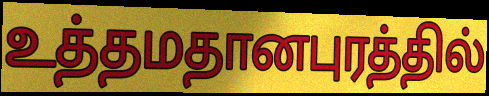
உத்தமதானபுரத்தில்